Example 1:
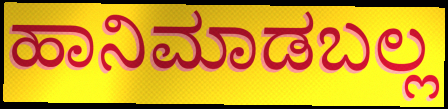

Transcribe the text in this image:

ಹಾನಿಮಾಡಬಲ್ಲ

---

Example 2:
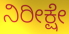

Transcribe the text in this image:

ನಿರೀಕ್ಷೇ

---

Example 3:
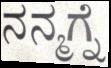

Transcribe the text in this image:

ನನ್ಮಗ್ನೆ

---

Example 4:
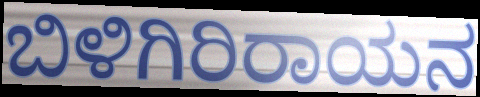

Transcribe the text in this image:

ಬಿಳಿಗಿರಿರಾಯನ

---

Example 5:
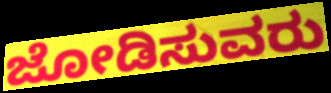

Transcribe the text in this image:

ಜೋಡಿಸುವರು